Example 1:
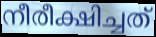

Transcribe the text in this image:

നീരീക്ഷിച്ചത്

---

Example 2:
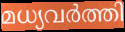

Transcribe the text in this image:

മധ്യവർത്തി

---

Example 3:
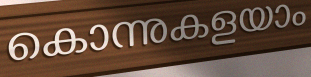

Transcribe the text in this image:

കൊന്നുകളയാം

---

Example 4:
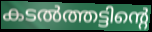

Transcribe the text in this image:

കടൽത്തട്ടിന്റെ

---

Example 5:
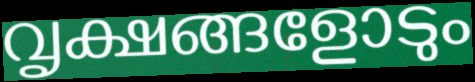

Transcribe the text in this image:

വൃക്ഷങ്ങളോടും